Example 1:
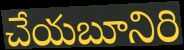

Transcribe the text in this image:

చేయబూనిరి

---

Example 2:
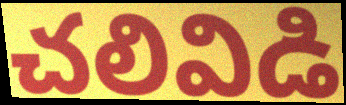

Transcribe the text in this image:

చలివిడి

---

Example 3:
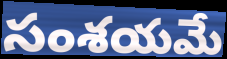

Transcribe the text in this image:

సంశయమే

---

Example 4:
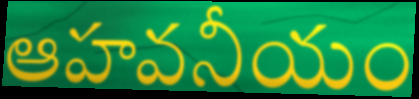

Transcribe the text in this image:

ఆహవనీయం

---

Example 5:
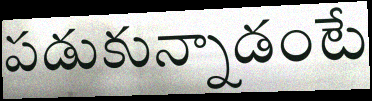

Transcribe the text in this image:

పడుకున్నాడంటే